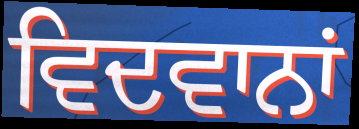
ਵਿਦਵਾਨਾਂ